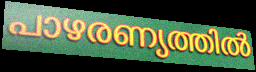
പാഴരണ്യത്തിൽ